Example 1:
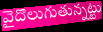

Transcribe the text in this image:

వైదొలుగుతున్నట్టు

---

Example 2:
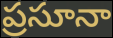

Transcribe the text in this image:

ప్రసూనా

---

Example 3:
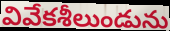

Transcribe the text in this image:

వివేకశీలుండును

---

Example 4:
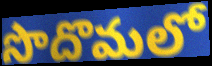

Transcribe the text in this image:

సొదొమలో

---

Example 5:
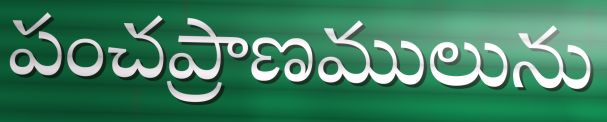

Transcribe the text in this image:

పంచప్రాణములును